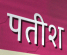
पतीश